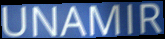
UNAMIR